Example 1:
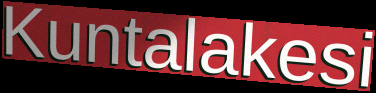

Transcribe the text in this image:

Kuntalakesi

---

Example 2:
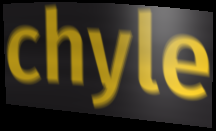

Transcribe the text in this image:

chyle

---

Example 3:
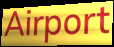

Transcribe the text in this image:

Airport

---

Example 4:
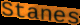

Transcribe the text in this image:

Stanes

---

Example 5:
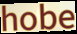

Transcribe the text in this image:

hobe